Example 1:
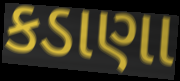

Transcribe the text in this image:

કડાણા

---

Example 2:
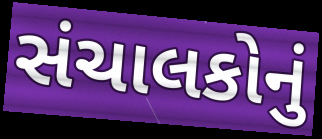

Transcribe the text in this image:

સંચાલકોનું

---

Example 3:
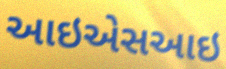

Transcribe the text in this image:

આઇએસઆઇ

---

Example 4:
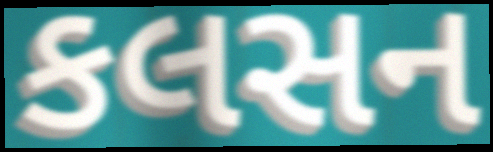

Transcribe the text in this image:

કલસન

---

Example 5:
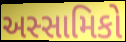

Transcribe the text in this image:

અસ્સામિકો